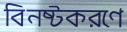
বিনষ্টকরণে